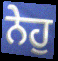
ਨੇਹੁ